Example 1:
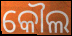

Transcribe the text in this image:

କୌଲ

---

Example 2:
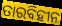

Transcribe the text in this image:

ତାରବିହୀନ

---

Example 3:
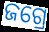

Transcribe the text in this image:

ଜଗ୍ରେ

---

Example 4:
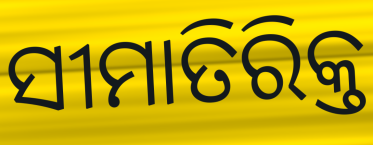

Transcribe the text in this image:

ସୀମାତିରିକ୍ତ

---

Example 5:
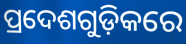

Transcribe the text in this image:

ପ୍ରଦେଶଗୁଡ଼ିକରେ